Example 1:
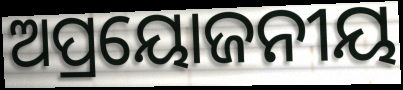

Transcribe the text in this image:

ଅପ୍ରୟୋଜନୀୟ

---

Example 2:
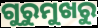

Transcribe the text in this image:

ଗୁରୁମୁଖରୁ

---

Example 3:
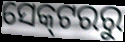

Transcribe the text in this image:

ସେକ୍‌ଟରରୁ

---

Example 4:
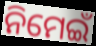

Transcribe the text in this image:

ନିମେଇଁ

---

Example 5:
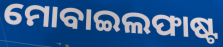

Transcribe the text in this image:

ମୋବାଇଲଫାଷ୍ଟ